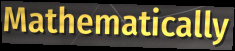
Mathematically